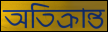
অতিক্রান্ত